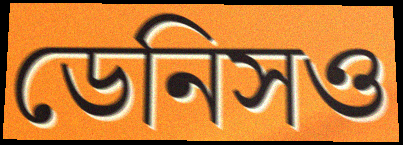
ডেনিসও